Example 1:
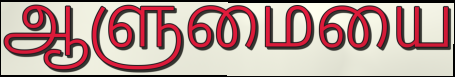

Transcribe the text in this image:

ஆளுமையை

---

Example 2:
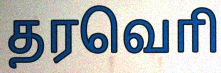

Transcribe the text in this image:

தரவெரி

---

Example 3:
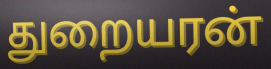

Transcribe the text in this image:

துறையரன்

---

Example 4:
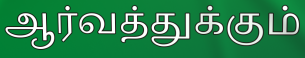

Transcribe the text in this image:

ஆர்வத்துக்கும்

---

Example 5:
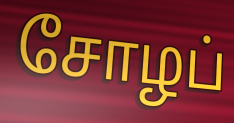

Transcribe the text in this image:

சோழப்